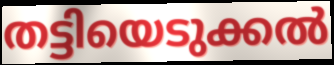
തട്ടിയെടുക്കൽ